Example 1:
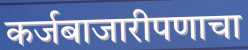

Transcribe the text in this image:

कर्जबाजारीपणाचा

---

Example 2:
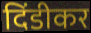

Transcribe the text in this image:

दिंडीकर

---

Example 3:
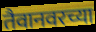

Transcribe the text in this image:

तैवानवरच्या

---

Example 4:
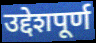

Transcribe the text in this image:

उद्देशपूर्ण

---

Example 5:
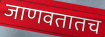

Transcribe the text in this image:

जाणवतातच